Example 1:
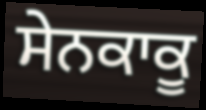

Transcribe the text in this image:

ਸੇਨਕਾਕੂ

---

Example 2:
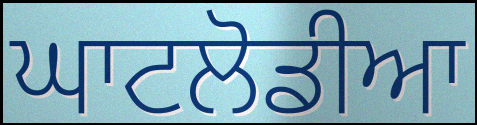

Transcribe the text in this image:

ਘਾਟਲੋਡੀਆ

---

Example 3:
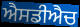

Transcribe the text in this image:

ਐਸਡੀਐਚ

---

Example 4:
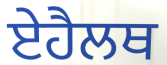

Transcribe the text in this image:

ਏਹੈਲਥ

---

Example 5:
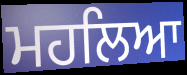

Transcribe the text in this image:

ਮਹਲਿਆ